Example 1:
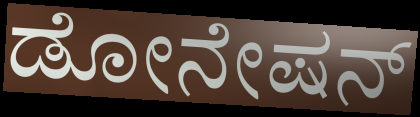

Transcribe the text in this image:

ಡೋನೇಷನ್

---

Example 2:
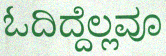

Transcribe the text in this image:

ಓದಿದ್ದೆಲ್ಲವೂ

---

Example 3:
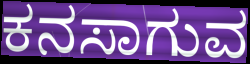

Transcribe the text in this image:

ಕನಸಾಗುವ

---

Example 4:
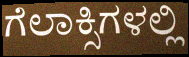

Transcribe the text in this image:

ಗೆಲಾಕ್ಸಿಗಳಲ್ಲಿ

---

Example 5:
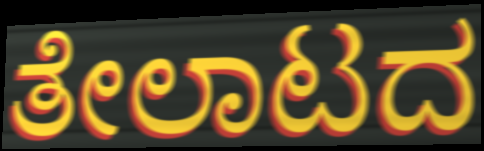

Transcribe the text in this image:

ತೇಲಾಟದ